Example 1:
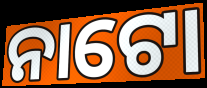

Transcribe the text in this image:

ନାଟୋ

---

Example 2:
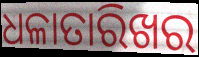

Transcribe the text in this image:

ଧଳାତାରିଖର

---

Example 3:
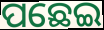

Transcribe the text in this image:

ପଛେଇ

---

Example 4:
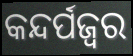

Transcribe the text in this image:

କନ୍ଦର୍ପଜ୍ବର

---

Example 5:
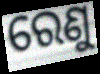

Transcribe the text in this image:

ରେଣୁ